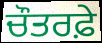
ਚੌਤਰਫ਼ੇ